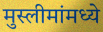
मुस्लीमांमध्ये